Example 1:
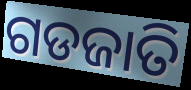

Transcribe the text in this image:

ଗଡଜାତି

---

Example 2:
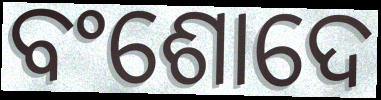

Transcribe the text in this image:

ବଂଶୋଦେ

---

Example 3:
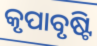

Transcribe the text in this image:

କୃପାବୃଷ୍ଟି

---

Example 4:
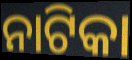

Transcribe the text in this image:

ନାଟିକା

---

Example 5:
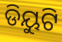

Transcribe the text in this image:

ଡିୟୁଟି